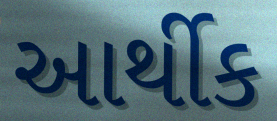
આર્થીક